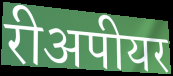
रीअपीयर